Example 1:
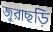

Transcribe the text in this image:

জুরাছড়ি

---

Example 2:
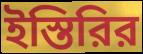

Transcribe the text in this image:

ইস্তিরির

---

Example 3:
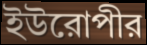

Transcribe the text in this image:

ইউরোপীর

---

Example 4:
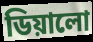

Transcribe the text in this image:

ডিয়ালো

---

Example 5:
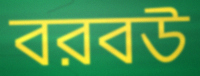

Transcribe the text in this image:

বরবউ